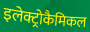
इलेक्ट्रोकैमिकल